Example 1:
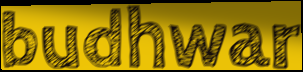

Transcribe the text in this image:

budhwar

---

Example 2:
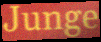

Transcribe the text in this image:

Junge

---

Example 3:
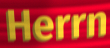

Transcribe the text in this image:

Herrn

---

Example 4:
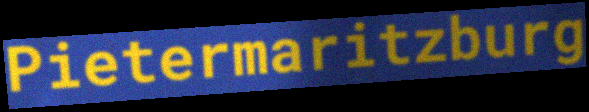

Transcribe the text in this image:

Pietermaritzburg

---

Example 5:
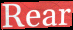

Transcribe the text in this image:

Rear